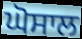
ਘੋਸਾਲ